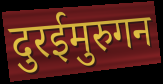
दुरईमुरुगन